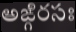
అఙ్గిరసః